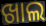
ଖାଲ